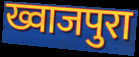
ख्वाजपुरा